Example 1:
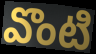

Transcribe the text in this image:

వొంటి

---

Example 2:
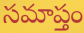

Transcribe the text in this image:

సమాప్తం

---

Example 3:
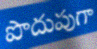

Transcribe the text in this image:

పొదుపుగా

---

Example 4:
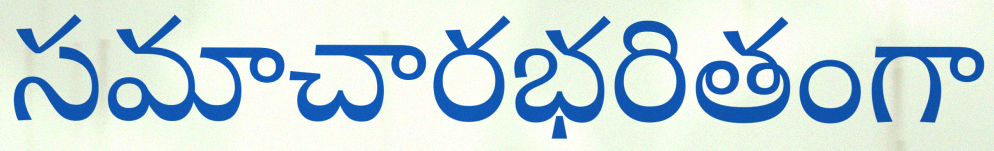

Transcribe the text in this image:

సమాచారభరితంగా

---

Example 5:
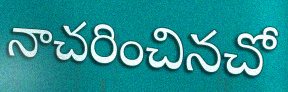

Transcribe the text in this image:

నాచరించినచో